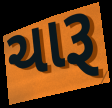
ચારૂ